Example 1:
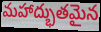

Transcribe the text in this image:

మహాద్భుతమైన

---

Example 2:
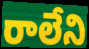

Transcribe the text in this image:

రాలేని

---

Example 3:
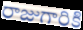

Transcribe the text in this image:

రాజుగారికి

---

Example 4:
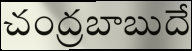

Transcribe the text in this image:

చంద్రబాబుదే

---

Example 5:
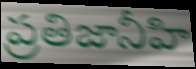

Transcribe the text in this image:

ప్రతిజానీహి